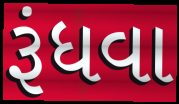
રૂંધવા